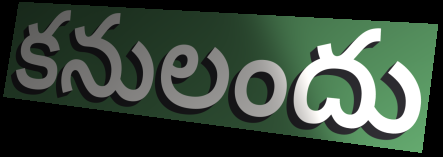
కనులందు